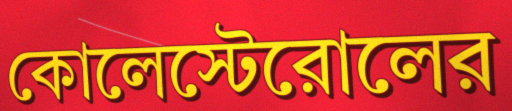
কোলেস্টেরোলের